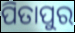
ପିତାପୁର